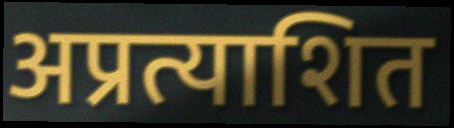
अप्रत्याशित